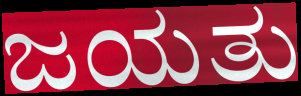
ಜಯತು